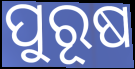
ପୁରୂଷ